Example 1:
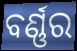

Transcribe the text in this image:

ବର୍ଣ୍ଣର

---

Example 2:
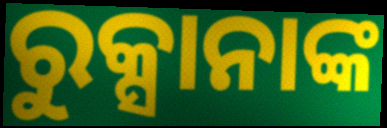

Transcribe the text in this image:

ରୁକ୍ସାନାଙ୍କ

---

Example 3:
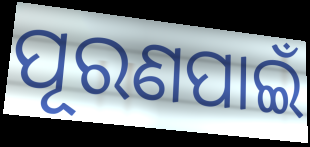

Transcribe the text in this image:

ପୂରଣପାଇଁ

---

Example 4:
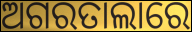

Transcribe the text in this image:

ଅଗରତାଲାରେ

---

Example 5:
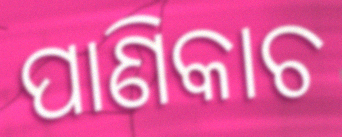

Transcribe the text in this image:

ପାଣିକାଚ